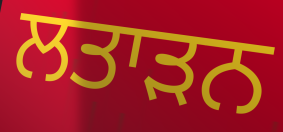
ਲਤਾੜਨ